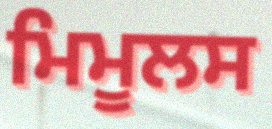
ਮਿਮੂਲਸ